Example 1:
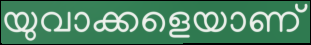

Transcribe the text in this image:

യുവാക്കളെയാണ്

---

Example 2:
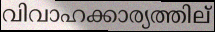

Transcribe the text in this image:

വിവാഹക്കാര്യത്തില്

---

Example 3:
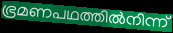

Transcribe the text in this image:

ഭ്രമണപഥത്തിൽനിന്ന്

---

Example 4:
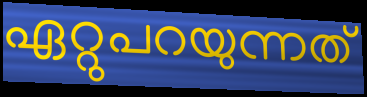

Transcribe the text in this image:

ഏറ്റുപറയുന്നത്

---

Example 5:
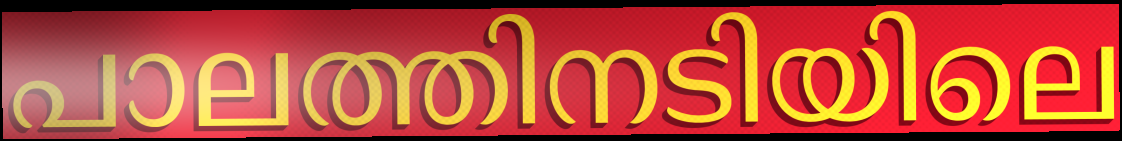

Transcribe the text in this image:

പാലത്തിനടിയിലെ